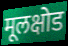
मूलक्षोड